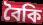
বৈকি